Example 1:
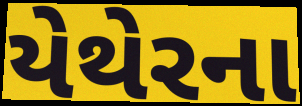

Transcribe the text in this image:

યેથેરના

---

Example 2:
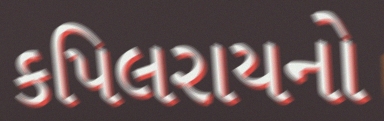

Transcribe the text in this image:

કપિલરાયનો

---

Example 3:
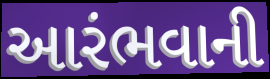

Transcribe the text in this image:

આરંભવાની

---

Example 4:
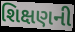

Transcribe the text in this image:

શિક્ષણની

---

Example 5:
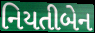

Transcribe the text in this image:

નિયતીબેન